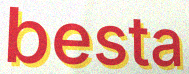
besta